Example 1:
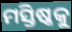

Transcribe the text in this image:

ମସ୍ତିଷ୍କକୁ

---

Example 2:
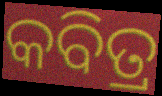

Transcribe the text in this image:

କବିତ୍ର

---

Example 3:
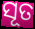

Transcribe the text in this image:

ସୂତ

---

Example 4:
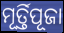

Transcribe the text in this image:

ମୂର୍ତ୍ତିପୂଜା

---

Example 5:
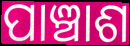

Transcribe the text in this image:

ପାଞ୍ଚାଶ